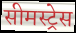
सीमस्ट्रेस